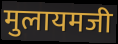
मुलायमजी